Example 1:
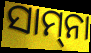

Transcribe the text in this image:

ସାମ୍‌ନା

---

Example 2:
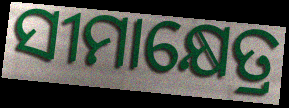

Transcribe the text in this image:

ସୀମାକ୍ଷେତ୍ର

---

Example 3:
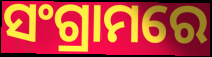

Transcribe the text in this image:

ସଂଗ୍ରାମରେ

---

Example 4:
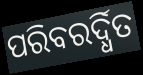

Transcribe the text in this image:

ପରିବରର୍ଦ୍ଧିତ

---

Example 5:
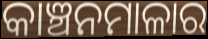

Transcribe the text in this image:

କାଞ୍ଚନମାଳାର